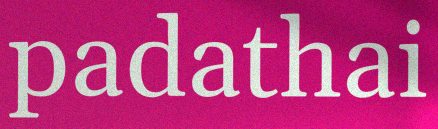
padathai